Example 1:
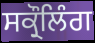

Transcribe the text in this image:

ਸਕ੍ਰੌਲਿੰਗ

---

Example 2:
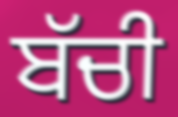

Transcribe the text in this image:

ਬੱਚੀ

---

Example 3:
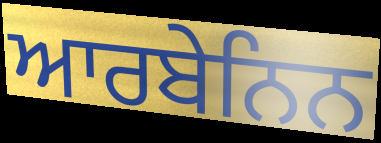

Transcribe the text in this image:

ਆਰਬੇਨਿਨ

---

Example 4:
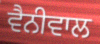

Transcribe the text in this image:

ਵੈਨੀਵਾਲ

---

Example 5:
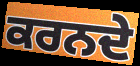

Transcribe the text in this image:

ਕਰਨਦੇ